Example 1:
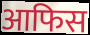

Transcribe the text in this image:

आफिस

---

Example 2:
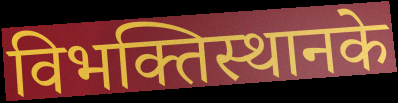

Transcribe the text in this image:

विभक्तिस्थानके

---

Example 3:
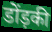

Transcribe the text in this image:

डोंड़की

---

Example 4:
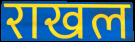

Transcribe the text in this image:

राखल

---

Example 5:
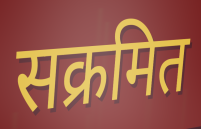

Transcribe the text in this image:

सक्रमित